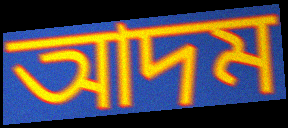
আদম